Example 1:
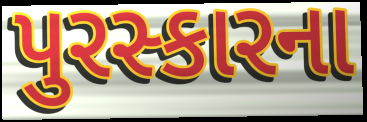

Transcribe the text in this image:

પુરસ્કારના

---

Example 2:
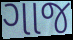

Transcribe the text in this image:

ગાજ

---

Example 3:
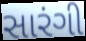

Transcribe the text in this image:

સારંગી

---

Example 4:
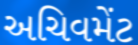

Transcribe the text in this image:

અચિવમેંટ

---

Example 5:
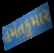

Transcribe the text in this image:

હેમંતકુમાર